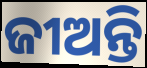
ଜୀଅନ୍ତି